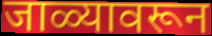
जाळ्यावरून